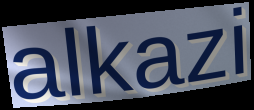
alkazi